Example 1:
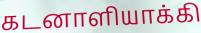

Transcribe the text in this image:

கடனாளியாக்கி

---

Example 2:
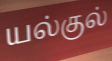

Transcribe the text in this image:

யல்குல்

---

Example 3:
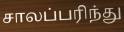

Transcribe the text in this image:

சாலப்பரிந்து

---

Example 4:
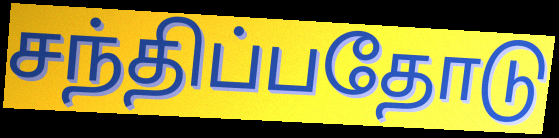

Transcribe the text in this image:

சந்திப்பதோடு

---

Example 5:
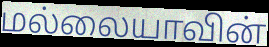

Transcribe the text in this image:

மல்லையாவின்